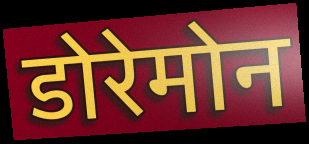
डोरेमोन